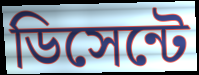
ডিসেন্টে